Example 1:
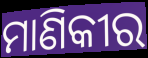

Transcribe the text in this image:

ମାଣିକୀର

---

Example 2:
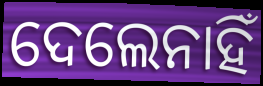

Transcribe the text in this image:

ଦେଲେନାହିଁ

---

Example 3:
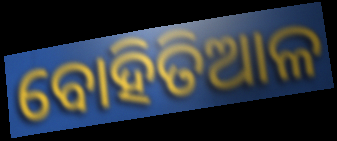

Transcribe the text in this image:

ବୋହିତିଆଳ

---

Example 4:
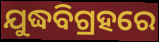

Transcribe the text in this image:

ଯୁଦ୍ଧବିଗ୍ରହରେ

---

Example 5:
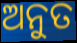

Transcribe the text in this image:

ଅନୁତ